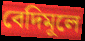
বেদিমূলে